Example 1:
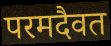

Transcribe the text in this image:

परमदैवत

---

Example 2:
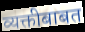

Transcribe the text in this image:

व्यक्तीबाबत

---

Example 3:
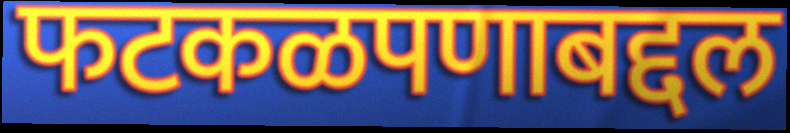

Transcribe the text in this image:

फटकळपणाबद्दल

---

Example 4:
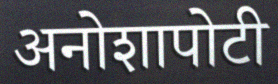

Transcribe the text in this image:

अनोशापोटी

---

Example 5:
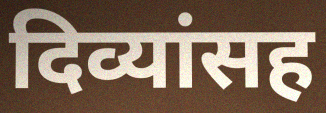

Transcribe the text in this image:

दिव्यांसह